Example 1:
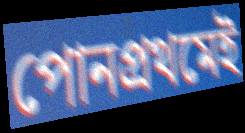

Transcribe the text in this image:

পোনপ্ৰথমেই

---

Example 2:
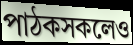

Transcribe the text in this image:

পাঠকসকলেও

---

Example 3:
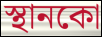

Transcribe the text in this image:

স্থানকো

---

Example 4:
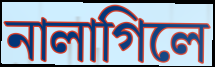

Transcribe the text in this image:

নালাগিলে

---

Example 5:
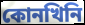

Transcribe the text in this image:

কোনখিনি